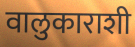
वालुकाराशी